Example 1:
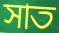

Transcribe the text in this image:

সাত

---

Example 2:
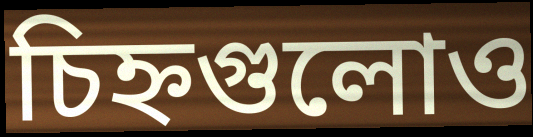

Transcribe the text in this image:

চিহ্নগুলোও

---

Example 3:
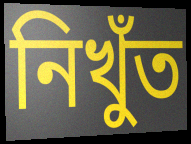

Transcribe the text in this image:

নিখুঁত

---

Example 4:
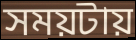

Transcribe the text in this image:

সময়টায়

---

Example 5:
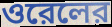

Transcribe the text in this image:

ওরেলের